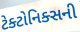
ટેક્ટોનિક્સની